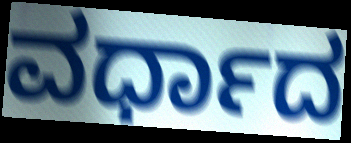
ವರ್ಧಾದ